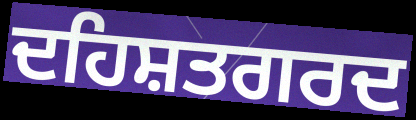
ਦਹਿਸ਼ਤਗਰਦ